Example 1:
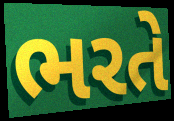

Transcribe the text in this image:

ભરતે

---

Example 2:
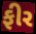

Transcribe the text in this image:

ફીર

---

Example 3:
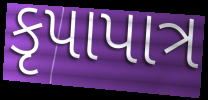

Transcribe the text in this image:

કૃપાપાત્ર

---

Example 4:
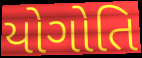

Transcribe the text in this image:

યોગોતિ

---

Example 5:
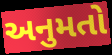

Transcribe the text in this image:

અનુમતો